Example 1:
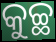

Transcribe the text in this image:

କୁଚ୍ଛ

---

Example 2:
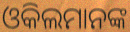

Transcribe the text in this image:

ଓକିଲମାନଙ୍କ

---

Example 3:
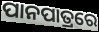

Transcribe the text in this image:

ପାନପାତ୍ରରେ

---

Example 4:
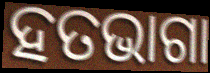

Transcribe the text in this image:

ହତଭାଗା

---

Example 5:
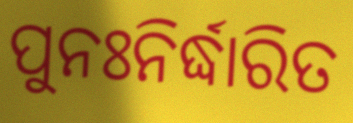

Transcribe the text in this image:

ପୁନଃନିର୍ଦ୍ଧାରିତ